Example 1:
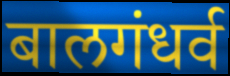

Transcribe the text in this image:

बालगंधर्व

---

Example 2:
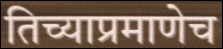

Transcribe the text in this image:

तिच्याप्रमाणेच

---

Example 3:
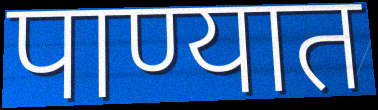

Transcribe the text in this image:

पाण्यात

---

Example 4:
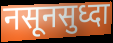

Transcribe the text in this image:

नसूनसुध्दा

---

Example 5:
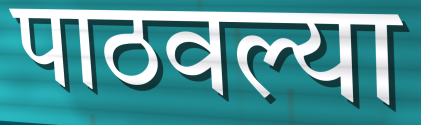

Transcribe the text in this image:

पाठवल्या